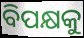
ବିପକ୍ଷକୁ